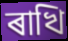
ৰাখি